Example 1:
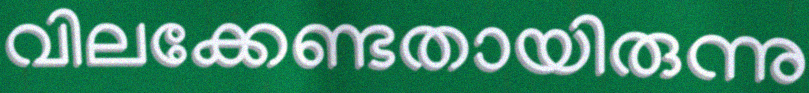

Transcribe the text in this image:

വിലക്കേണ്ടതായിരുന്നു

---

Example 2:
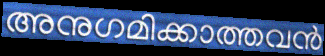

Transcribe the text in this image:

അനുഗമിക്കാത്തവൻ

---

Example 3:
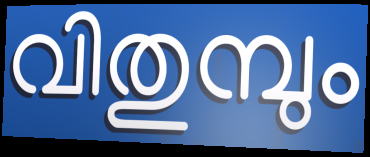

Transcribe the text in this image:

വിതുമ്പും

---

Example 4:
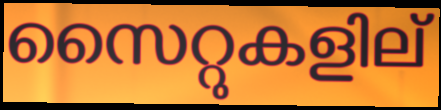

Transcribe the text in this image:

സൈറ്റുകളില്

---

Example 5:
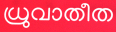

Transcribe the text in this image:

ധ്രുവാതീത